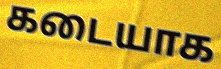
கடையாக